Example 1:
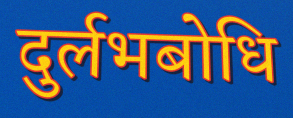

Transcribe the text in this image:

दुर्लभबोधि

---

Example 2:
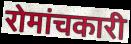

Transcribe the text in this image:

रोमांचकारी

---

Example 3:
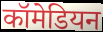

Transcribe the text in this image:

कॉमेडियन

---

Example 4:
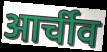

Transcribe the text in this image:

आर्चीव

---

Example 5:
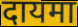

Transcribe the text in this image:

दायमा